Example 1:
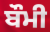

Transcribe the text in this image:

ਬੌਮੀ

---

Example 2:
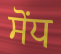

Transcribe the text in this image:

ਸੋਂਧ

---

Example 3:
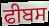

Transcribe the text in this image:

ਫੀਬਸ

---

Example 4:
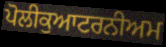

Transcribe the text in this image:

ਪੋਲੀਕੁਆਟਰਨੀਅਮ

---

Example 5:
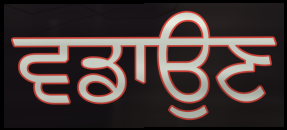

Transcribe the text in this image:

ਵਡਾਉਣ